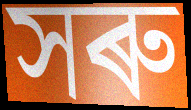
সৰু